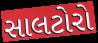
સાલટોરો